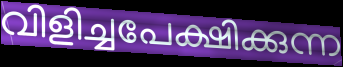
വിളിച്ചപേക്ഷിക്കുന്ന